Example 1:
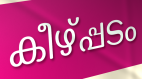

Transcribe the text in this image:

കീഴ്പ്പടം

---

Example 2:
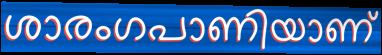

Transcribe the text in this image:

ശാരംഗപാണിയാണ്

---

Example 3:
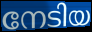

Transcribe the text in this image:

നേടിയ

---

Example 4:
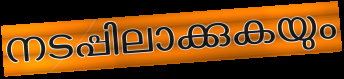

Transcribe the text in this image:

നടപ്പിലാക്കുകയും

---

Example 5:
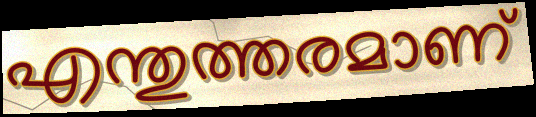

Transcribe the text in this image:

എന്തുത്തരമാണ്